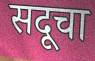
सदूचा